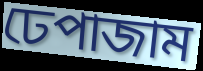
ঢেপাজাম